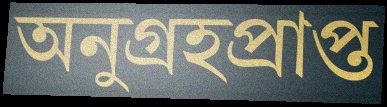
অনুগ্রহপ্রাপ্ত